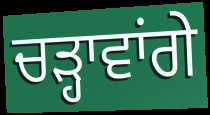
ਚੜ੍ਹਾਵਾਂਗੇ